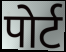
पोर्ट